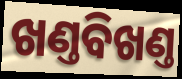
ଖଣ୍ତବିଖଣ୍ତ